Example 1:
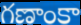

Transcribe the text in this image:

గణాంకా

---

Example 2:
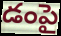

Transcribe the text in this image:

డంపై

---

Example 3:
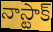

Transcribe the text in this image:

నాస్టాక్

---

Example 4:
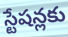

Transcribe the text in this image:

స్టేషన్లకు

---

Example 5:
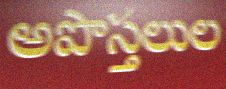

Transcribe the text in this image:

అపొస్తలుల